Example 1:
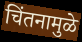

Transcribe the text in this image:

चिंतनामुळे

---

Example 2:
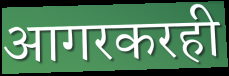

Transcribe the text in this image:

आगरकरही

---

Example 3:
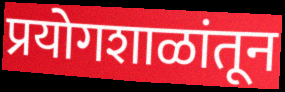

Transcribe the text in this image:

प्रयोगशाळांतून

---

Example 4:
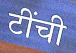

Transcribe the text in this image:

टींची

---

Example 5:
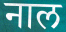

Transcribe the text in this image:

नाल